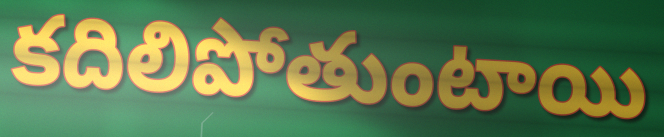
కదిలిపోతుంటాయి